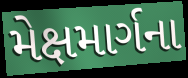
મેક્ષમાર્ગના